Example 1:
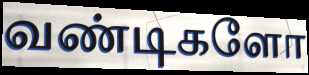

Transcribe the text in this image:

வண்டிகளோ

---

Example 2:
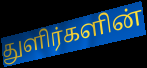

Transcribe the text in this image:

துளிர்களின்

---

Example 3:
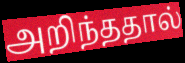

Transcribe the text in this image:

அறிந்ததால்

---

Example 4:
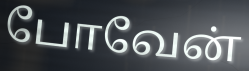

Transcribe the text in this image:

போவேன்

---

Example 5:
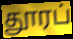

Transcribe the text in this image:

தூரப்